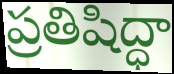
ప్రతిషిద్ధా